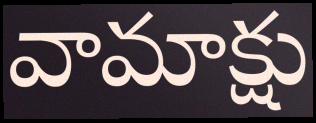
వామాక్షు